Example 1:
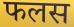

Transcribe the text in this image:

फलस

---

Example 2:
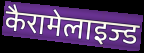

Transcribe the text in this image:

कैरामेलाइज्ड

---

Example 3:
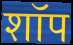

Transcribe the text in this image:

शॉप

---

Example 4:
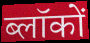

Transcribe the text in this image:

ब्लॉकों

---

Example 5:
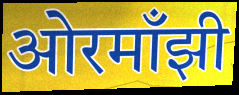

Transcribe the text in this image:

ओरमाँझी